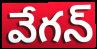
వేగన్